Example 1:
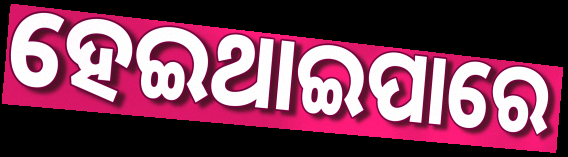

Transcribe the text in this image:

ହେଇଥାଇପାରେ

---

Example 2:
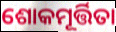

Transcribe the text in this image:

ଶୋକମୂର୍ତ୍ତିତା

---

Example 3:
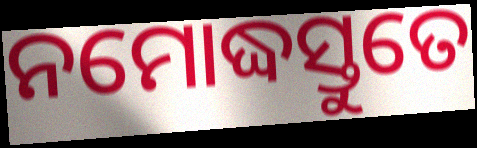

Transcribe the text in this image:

ନମୋଦ୍ଧସ୍ତୁତେ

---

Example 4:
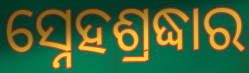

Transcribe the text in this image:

ସ୍ନେହଶ୍ରଦ୍ଧାର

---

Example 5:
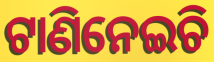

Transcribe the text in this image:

ଟାଣିନେଇଚି